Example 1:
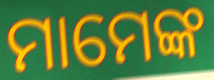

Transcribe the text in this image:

ମାମେଙ୍କ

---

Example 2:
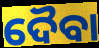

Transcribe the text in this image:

ଦୈବା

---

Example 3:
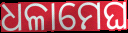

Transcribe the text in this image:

ଧଳାମେଘ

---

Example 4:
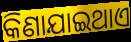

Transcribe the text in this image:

କିଣାଯାଇଥାଏ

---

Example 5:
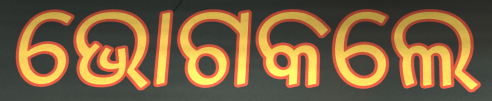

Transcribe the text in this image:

ଭୋଗକଲେ